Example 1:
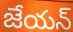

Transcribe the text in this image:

జేయన్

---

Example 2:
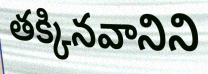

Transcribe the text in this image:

తక్కినవానిని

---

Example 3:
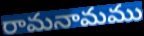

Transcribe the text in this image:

రామనామము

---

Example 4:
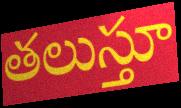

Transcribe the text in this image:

తలుస్తూ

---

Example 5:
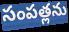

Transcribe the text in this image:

సంపత్లను